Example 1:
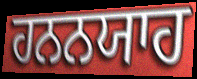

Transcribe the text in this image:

ਹਨਨਯਾਹ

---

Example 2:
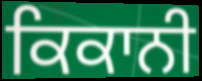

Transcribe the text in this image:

ਕਿਕਾਨੀ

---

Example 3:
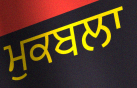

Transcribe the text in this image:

ਮੁਕਬਲਾ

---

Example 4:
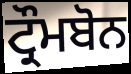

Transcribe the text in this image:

ਟ੍ਰੌਮਬੋਨ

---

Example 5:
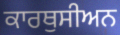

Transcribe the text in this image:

ਕਾਰਥੁਸੀਅਨ